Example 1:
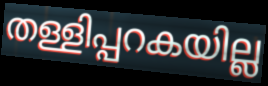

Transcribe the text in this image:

തള്ളിപ്പറകയില്ല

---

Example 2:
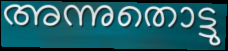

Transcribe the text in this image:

അന്നുതൊട്ടു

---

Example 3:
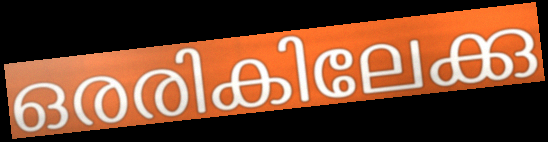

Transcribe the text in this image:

ഒരരികിലേക്കു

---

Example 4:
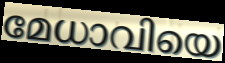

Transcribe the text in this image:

മേധാവിയെ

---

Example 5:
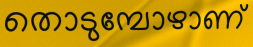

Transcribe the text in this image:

തൊടുമ്പോഴാണ്